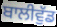
ਬਾਲੀਵੁੱਡ